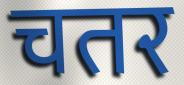
चतर